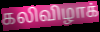
கலிவிழாக்